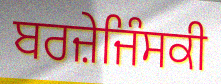
ਬਰਜ਼ੇਜਿੰਸਕੀ